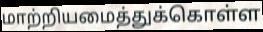
மாற்றியமைத்துக்கொள்ள